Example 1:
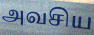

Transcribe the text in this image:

அவசிய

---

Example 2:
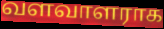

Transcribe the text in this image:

வளவாளராக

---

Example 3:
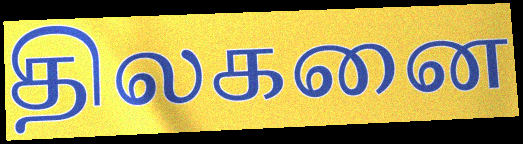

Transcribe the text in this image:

திலகனை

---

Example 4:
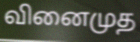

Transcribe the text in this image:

வினைமுத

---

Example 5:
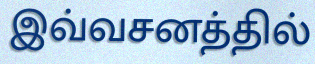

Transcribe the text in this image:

இவ்வசனத்தில்